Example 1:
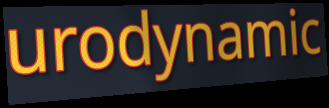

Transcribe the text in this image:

urodynamic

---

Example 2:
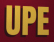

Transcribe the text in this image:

UPE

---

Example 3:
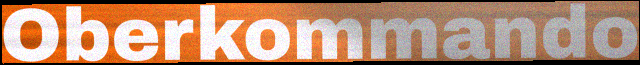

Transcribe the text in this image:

Oberkommando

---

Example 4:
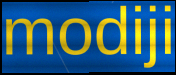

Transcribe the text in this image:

modiji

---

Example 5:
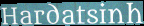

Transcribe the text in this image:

Hardatsinh